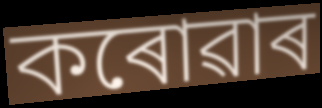
কৰোৱাৰ